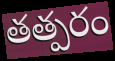
తత్పరం